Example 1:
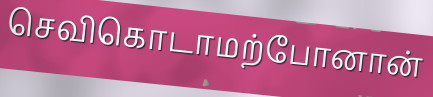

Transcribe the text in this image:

செவிகொடாமற்போனான்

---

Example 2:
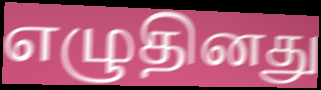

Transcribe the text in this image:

எழுதினது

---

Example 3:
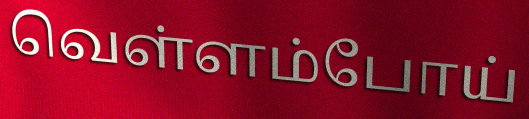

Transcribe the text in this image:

வெள்ளம்போய்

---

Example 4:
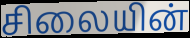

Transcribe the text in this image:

சிலையின்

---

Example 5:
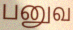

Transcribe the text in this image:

பனுவ